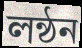
লন্ঠন